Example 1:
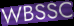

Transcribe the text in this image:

WBSSC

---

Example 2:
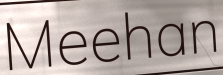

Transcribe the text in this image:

Meehan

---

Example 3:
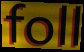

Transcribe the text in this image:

foll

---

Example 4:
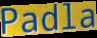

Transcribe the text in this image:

Padla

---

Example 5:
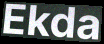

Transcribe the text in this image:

Ekda